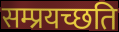
सम्प्रयच्छति